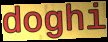
doghi